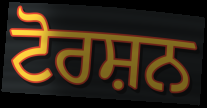
ਟੋਰਸ਼ਨ